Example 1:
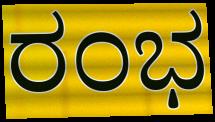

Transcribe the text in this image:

ರಂಭ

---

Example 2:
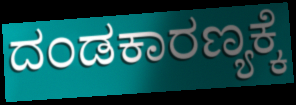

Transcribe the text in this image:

ದಂಡಕಾರಣ್ಯಕ್ಕೆ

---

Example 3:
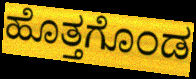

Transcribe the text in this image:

ಹೊತ್ತಗೊಂಡ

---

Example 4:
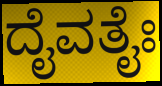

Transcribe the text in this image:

ದೈವತೈಃ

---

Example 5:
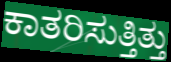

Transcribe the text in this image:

ಕಾತರಿಸುತ್ತಿತ್ತು